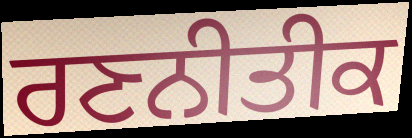
ਰਣਨੀਤੀਕ